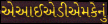
એઆઈએડીએમકેનું